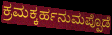
ಕ್ರಮಕ್ಕರ್ಹನುಮಪ್ಪೊಡೆ